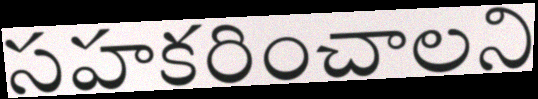
సహకరించాలని